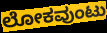
ಲೋಕವುಂಟು